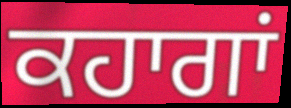
ਕਹਾਗਾਂ